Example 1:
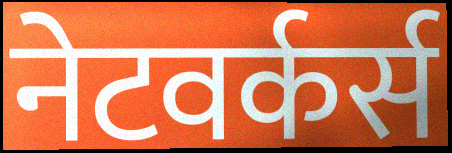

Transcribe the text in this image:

नेटवर्कर्स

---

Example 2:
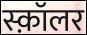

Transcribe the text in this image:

स्क़ॉलर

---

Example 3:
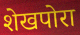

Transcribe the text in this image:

शेखपोरा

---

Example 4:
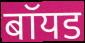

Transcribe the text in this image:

बॉयड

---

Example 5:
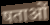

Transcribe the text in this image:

षताओं